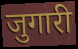
जुगारी